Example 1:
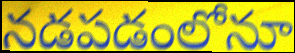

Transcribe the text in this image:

నడపడంలోనూ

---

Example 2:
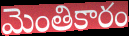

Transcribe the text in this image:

మెంతికారం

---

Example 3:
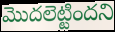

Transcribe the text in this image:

మొదలెట్టిందని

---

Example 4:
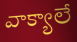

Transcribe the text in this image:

వాక్యాలే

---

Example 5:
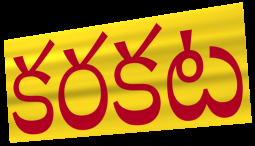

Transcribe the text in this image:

కరకట